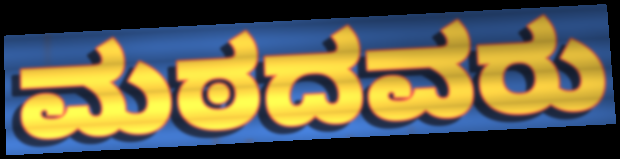
ಮಠದವರು